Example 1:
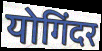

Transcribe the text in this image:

योगिंदर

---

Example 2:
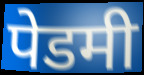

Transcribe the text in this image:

पेडमी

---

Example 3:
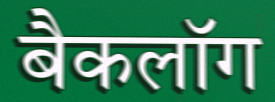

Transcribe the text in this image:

बैकलॉग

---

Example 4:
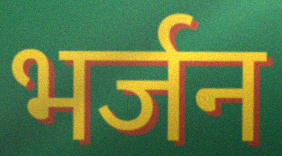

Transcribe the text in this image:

भर्जन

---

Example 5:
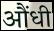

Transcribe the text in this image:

औंधी